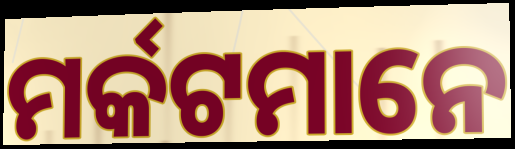
ମର୍କଟମାନେ